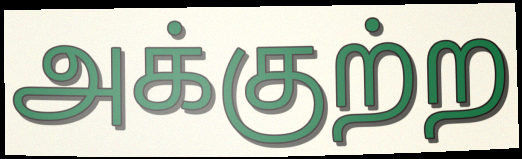
அக்குற்ற